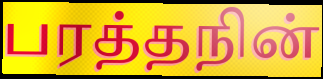
பரத்தநின்